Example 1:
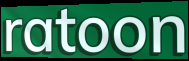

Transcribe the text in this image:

ratoon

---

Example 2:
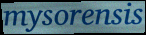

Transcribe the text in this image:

mysorensis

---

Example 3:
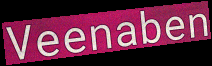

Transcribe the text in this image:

Veenaben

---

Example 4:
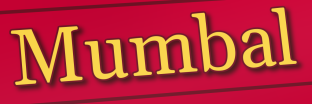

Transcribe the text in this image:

Mumbal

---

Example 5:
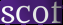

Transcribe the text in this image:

scot